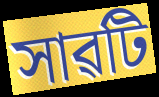
সাৱটি